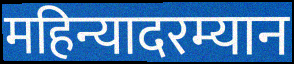
महिन्यादरम्यान